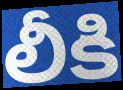
లీకి